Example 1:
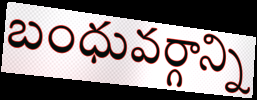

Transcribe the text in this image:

బంధువర్గాన్ని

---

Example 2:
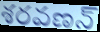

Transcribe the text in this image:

శరవణన్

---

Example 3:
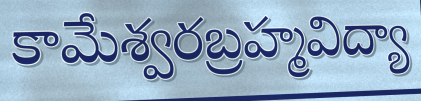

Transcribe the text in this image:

కామేశ్వరబ్రహ్మవిద్యా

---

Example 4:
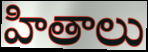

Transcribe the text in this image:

హితాలు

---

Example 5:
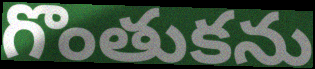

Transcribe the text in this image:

గొంతుకను